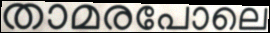
താമരപോലെ